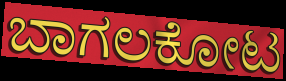
ಬಾಗಲಕೋಟ